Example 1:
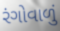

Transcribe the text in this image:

રંગોવાળું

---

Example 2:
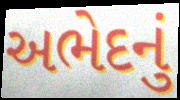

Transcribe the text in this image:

અભેદનું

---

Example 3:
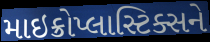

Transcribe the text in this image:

માઇક્રોપ્લાસ્ટિક્સને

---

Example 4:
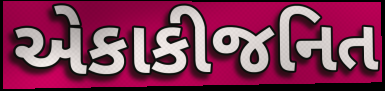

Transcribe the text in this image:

એકાકીજનિત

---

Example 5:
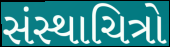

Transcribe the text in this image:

સંસ્થાચિત્રો